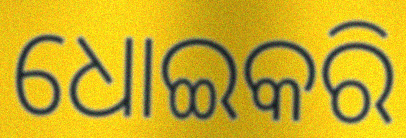
ଧୋଇକରି